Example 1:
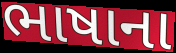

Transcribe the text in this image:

ભાષાના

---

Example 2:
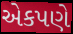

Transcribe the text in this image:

એકપણે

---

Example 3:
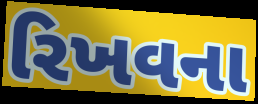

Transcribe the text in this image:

રિખવના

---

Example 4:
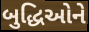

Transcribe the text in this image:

બુદ્ધિઓને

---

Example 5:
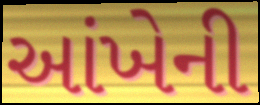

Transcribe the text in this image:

આંખેની